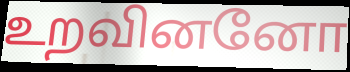
உறவினனோ